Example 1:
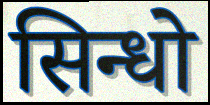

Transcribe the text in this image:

सिन्धो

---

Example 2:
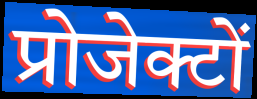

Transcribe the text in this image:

प्रोजेक्टों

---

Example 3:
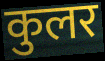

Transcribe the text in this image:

कुलर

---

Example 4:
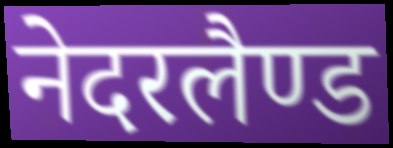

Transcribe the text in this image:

नेदरलैण्ड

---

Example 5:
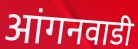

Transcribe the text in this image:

आंगनवाडी